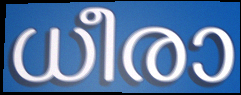
ധീരാ